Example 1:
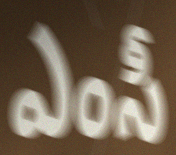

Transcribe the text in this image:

ఎంసీ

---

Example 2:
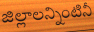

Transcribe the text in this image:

జిల్లాలన్నింటినీ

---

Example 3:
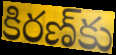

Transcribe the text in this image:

కిరణ్‌కు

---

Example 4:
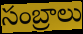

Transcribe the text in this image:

సంబ్రాలు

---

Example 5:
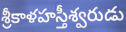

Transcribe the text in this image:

శ్రీకాళహస్తీశ్వరుడు